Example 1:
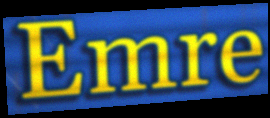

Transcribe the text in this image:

Emre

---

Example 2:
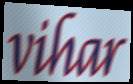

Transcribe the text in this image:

vihar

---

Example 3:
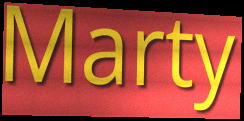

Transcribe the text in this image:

Marty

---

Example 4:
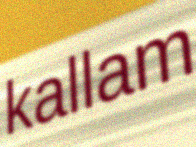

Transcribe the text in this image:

kallam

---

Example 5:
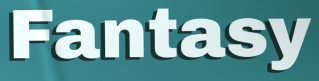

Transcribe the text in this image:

Fantasy